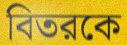
বিতরকে